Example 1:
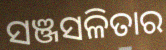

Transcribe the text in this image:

ସଞ୍ଜସଳିତାର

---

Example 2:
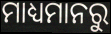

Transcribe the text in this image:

ମାଧ୍ୟମାନରୁ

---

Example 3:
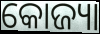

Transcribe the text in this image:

କୋଜ୍ୟା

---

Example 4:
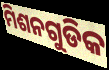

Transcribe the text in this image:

ମିଶନଗୁଡିକ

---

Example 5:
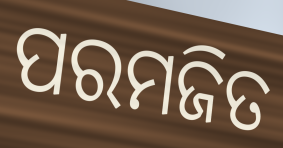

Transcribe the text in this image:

ପରମଜିତ